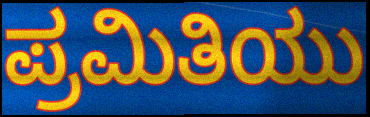
ಪ್ರಮಿತಿಯು